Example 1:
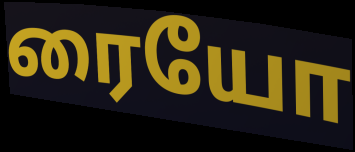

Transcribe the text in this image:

ரையோ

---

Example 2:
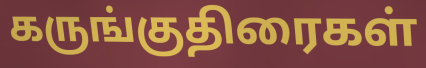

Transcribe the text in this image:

கருங்குதிரைகள்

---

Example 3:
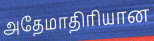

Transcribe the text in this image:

அதேமாதிரியான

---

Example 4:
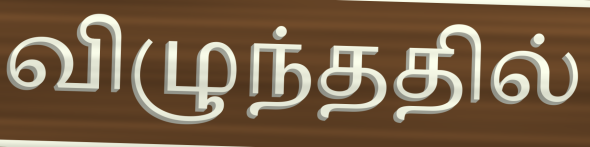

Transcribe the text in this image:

விழுந்ததில்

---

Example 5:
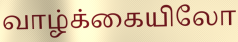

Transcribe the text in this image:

வாழ்க்கையிலோ